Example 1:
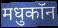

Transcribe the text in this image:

मधुकॉन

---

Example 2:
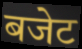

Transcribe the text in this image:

बजेट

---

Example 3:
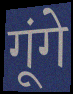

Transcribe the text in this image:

गूंगे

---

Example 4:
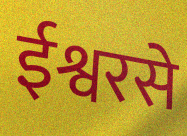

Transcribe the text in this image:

ईश्वरसे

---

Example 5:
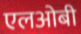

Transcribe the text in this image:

एलओबी